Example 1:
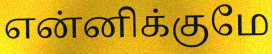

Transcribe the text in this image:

என்னிக்குமே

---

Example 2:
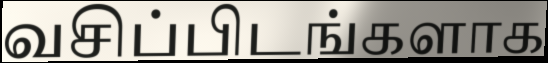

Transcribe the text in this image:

வசிப்பிடங்களாக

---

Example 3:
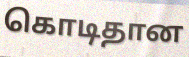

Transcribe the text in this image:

கொடிதான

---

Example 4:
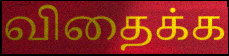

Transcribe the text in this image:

விதைக்க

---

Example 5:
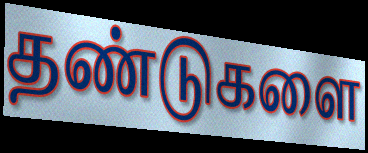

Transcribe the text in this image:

தண்டுகளை